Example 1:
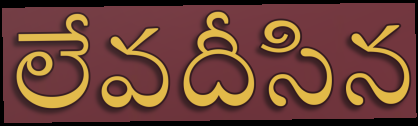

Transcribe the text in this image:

లేవదీసిన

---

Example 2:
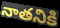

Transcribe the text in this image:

నాతనికి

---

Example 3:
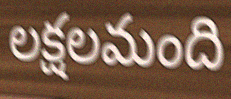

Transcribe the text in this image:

లక్షలమంది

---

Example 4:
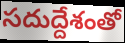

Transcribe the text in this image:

సదుద్దేశంతో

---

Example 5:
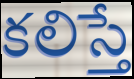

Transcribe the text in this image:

కలిస్తే